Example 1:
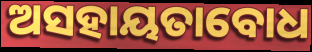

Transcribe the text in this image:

ଅସହାୟତାବୋଧ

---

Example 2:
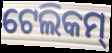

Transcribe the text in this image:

ଟେଲିକମ୍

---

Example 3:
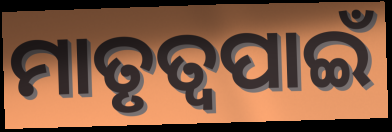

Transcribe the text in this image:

ମାତୃତ୍ୱପାଇଁ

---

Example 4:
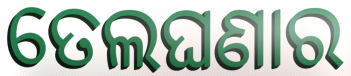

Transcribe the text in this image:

ତେଲଘଣାର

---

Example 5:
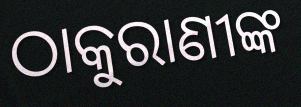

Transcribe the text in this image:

ଠାକୁରାଣୀଙ୍କ